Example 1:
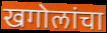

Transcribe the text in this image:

खगोलांचा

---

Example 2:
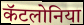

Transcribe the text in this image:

कॅटलोनिया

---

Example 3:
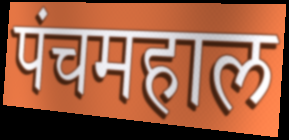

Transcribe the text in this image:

पंचमहाल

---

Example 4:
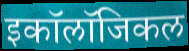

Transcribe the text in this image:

इकॉलॉजिकल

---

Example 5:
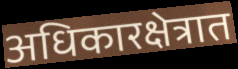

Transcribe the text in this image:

अधिकारक्षेत्रात